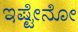
ಇಷ್ಟೇನೋ